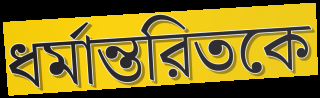
ধর্মান্তরিতকে